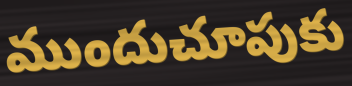
ముందుచూపుకు